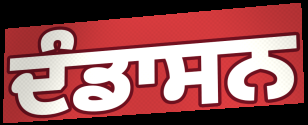
ਦੰਡਾਸਨ